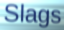
Slags